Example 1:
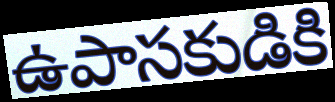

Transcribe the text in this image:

ఉపాసకుడికి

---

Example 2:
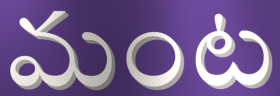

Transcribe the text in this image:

మంట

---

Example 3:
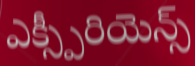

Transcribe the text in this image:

ఎక్స్పీరియెన్స్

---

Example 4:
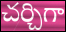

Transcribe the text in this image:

చర్చిగా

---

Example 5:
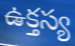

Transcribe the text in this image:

ఉక్తస్య